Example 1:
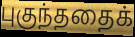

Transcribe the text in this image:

புகுந்ததைக்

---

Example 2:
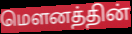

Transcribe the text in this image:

மௌனத்தின்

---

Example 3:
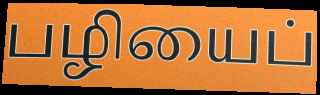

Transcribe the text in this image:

பழியைப்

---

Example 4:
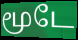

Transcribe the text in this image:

மூடே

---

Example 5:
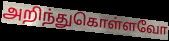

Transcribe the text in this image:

அறிந்துகொள்ளவோ